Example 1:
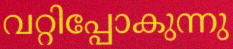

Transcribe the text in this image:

വറ്റിപ്പോകുന്നു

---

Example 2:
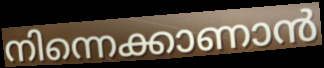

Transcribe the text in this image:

നിന്നെക്കാണാൻ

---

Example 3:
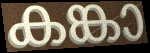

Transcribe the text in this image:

കങ്കാ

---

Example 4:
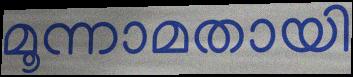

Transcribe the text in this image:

മൂന്നാമതായി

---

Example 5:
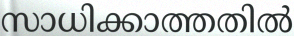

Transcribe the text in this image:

സാധിക്കാത്തതിൽ